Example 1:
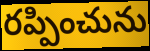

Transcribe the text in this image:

రప్పించును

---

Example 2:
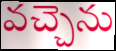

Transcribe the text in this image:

వచ్చెను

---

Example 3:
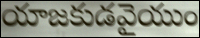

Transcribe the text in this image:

యాజకుడవైయుం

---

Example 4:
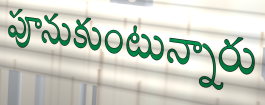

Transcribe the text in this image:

పూనుకుంటున్నారు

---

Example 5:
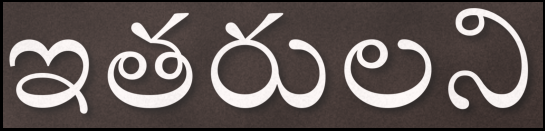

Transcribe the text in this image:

ఇతరులని